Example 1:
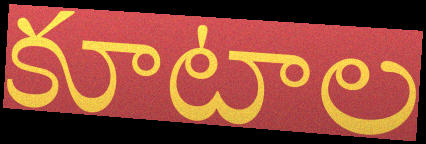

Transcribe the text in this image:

కూటాల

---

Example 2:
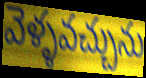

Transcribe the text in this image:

వెళ్ళవచ్చును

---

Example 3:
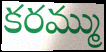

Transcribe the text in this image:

కరమ్ము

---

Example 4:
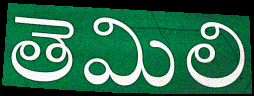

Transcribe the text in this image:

తెమిలి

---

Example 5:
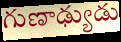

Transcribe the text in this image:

గుణాఢ్యుడు